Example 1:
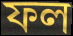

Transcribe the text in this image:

ফল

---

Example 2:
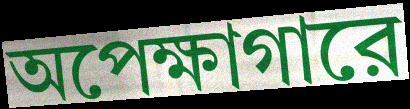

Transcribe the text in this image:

অপেক্ষাগারে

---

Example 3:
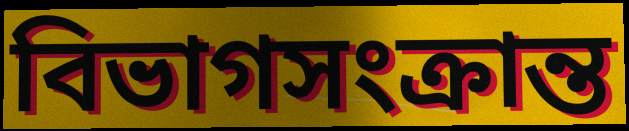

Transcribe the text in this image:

বিভাগসংক্রান্ত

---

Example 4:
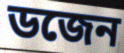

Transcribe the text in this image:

ডজেন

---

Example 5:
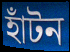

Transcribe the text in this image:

হাঁটন